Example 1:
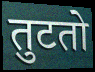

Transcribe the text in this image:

तुटतो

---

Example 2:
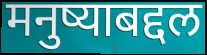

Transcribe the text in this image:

मनुष्याबद्दल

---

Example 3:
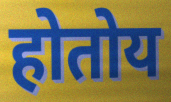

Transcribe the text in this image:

होतोय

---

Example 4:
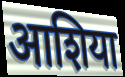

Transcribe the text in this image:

आशिया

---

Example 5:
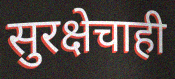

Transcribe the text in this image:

सुरक्षेचाही